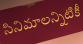
సినిమాలన్నిటికీ